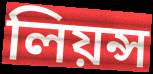
লিয়ন্স